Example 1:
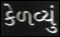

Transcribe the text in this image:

કેળવ્યું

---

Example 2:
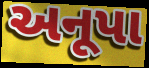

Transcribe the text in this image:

અનૂપા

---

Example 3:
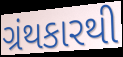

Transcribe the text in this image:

ગ્રંથકારથી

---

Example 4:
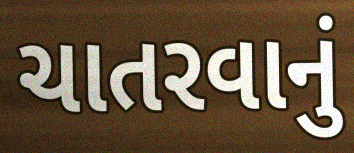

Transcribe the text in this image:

ચાતરવાનું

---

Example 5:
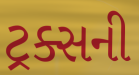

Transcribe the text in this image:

ટ્રક્સની